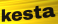
kesta